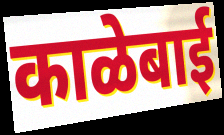
काळेबाई